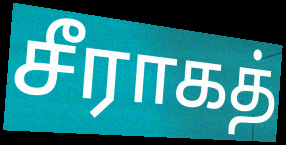
சீராகத்